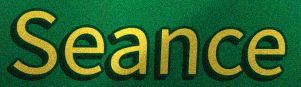
Seance